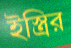
ইস্ত্রির